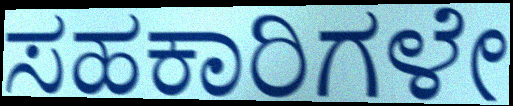
ಸಹಕಾರಿಗಳೇ